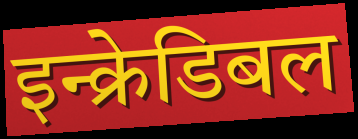
इन्क्रेडिबल